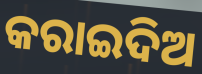
କରାଇଦିଅ